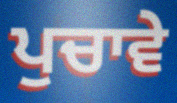
ਪੁਚਾਵੇ